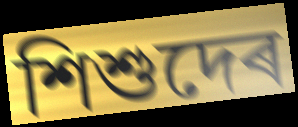
শিশুদেৰ